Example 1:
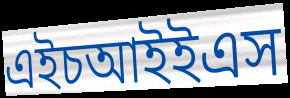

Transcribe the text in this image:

এইচআইইএস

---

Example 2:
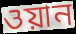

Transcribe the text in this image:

ওয়ান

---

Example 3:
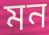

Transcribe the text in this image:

মন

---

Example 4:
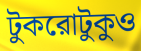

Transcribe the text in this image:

টুকরোটুকুও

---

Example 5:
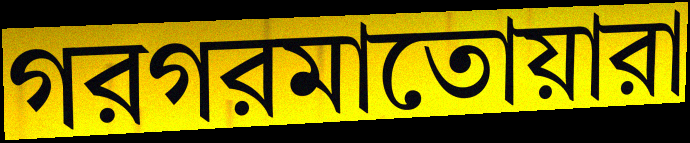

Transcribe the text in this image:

গরগরমাতোয়ারা